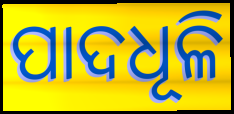
ପାଦଧୂଳି